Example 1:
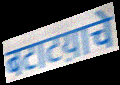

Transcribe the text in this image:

बटाटय़ाचे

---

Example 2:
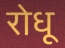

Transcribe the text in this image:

रोधू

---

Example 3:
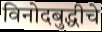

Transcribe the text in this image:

विनोदबुद्धीचे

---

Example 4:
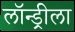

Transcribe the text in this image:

लॉन्ड्रीला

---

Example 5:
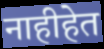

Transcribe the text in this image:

नाहीहेत